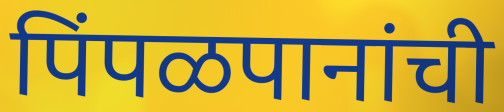
पिंपळपानांची